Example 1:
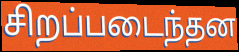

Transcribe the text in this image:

சிறப்படைந்தன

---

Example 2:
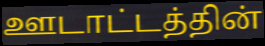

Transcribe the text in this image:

ஊடாட்டத்தின்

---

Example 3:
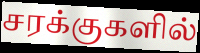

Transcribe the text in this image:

சரக்குகளில்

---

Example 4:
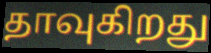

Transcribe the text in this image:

தாவுகிறது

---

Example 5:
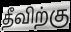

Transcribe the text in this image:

தீவிற்கு